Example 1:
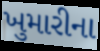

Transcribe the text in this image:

ખુમારીના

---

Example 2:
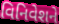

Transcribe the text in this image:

વિનિવેશને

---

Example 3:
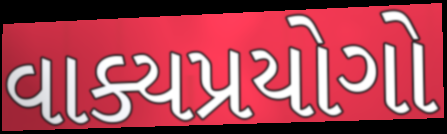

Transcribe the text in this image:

વાક્યપ્રયોગો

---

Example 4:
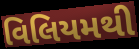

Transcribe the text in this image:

વિલિયમથી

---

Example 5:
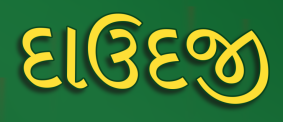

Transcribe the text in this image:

દાઉદજી